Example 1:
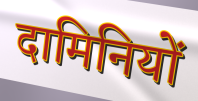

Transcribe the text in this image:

दामिनियों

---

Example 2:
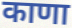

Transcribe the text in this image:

काणा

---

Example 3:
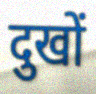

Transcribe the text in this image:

दुखों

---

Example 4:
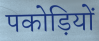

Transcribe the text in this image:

पकोड़ियों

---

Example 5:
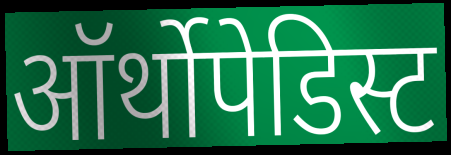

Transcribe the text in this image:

ऑर्थोपेडिस्ट